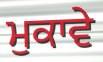
ਮੁਕਾਵੇ